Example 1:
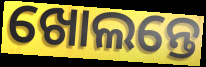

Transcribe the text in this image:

ଖୋଲନ୍ତେ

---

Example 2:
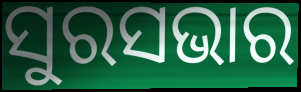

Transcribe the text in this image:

ସୁରସଭାର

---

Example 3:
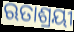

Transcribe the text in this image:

ଋତାଶ୍ରୟୀ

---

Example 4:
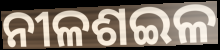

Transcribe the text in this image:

ନୀଳଶଇଳ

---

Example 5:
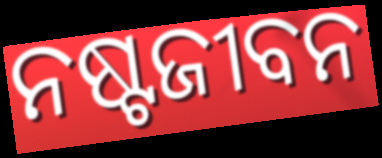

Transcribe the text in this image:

ନଷ୍ଟଜୀବନ